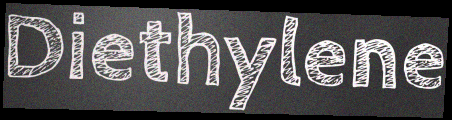
Diethylene